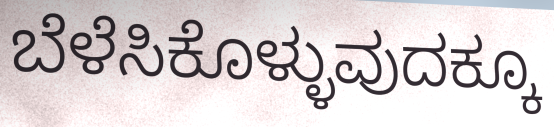
ಬೆಳೆಸಿಕೊಳ್ಳುವುದಕ್ಕೂ